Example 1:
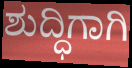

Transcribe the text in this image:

ಶುದ್ಧಿಗಾಗಿ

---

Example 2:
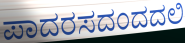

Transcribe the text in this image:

ಪಾದರಸದಂದದಲಿ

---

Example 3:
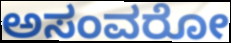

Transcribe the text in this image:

ಅಸಂವರೋ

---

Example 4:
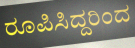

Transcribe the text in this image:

ರೂಪಿಸಿದ್ದರಿಂದ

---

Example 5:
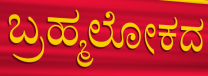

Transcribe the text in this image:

ಬ್ರಹ್ಮಲೋಕದ